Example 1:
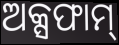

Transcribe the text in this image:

ଅକ୍ସଫାମ୍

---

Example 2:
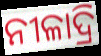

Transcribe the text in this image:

ନୀଳାଦ୍ରି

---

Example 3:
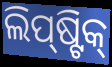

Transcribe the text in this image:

ଲିପ୍‍ଷ୍ଟିକ୍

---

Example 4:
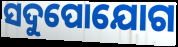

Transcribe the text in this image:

ସଦୁପୋଯୋଗ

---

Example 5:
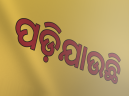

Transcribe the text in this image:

ପଡ଼ିଯାଉଛି